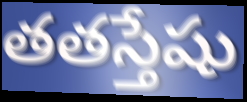
తతస్తేషు